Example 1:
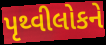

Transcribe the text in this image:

પૃથ્વીલોકને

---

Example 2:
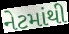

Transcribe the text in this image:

નેટમાંથી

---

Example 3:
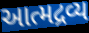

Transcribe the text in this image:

આત્મદ્રવ્ય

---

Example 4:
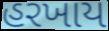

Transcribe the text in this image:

હરખાય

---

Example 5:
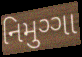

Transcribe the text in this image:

નિમુગ્ગા